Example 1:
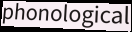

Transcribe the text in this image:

phonological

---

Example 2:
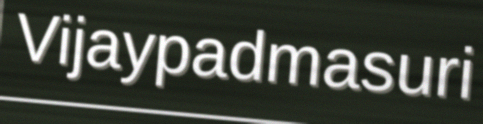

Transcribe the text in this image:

Vijaypadmasuri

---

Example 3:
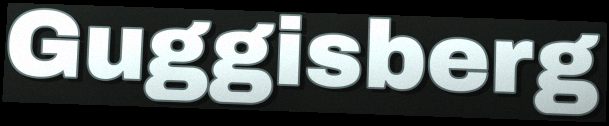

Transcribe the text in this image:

Guggisberg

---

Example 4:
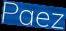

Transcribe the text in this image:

Paez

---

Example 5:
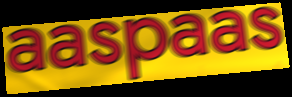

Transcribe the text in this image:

aaspaas